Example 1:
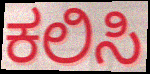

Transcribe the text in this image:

ಕಲಿಸಿ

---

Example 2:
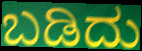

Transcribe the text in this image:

ಬಡಿದು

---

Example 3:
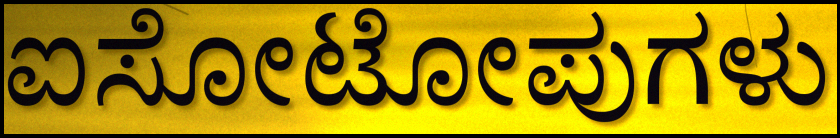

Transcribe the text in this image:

ಐಸೋಟೋಪುಗಳು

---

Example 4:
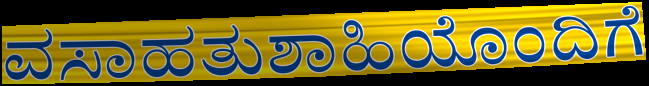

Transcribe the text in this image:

ವಸಾಹತುಶಾಹಿಯೊಂದಿಗೆ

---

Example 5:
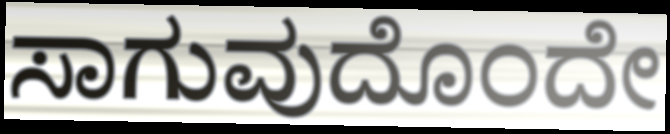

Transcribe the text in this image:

ಸಾಗುವುದೊಂದೇ